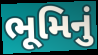
ભૂમિનું